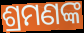
ଶ୍ରମଣଙ୍କ